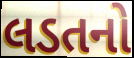
લડતનો